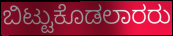
ಬಿಟ್ಟುಕೊಡಲಾರರು